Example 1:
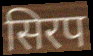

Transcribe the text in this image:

सिरप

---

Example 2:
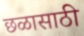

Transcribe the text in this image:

छळासाठी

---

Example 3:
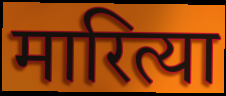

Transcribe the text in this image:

मारित्या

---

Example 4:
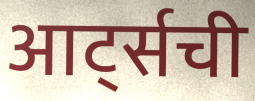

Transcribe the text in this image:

आर्ट्सची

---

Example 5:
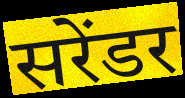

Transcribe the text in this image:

सरेंडर